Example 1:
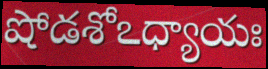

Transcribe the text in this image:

షోడశోఽధ్యాయః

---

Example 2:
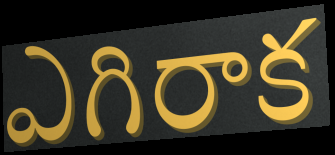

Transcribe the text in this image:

ఎగిరాక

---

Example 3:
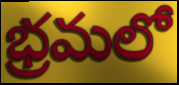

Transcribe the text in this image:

భ్రమలో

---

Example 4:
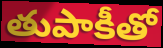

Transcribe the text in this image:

తుపాకీతో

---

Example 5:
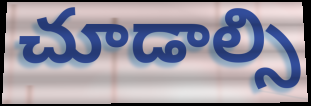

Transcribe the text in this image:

చూడాల్సి